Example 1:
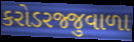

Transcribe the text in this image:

કરોડરજ્જુવાળા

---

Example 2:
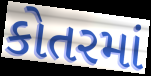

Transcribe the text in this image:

કોતરમાં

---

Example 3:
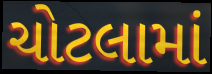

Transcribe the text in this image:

ચોટલામાં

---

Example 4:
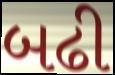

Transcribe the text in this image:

બઢી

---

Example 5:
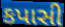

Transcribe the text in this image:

કપાસી